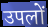
उपलों